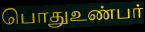
பொதுஉண்பர்